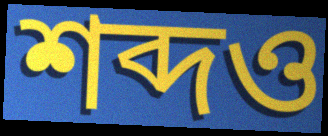
শব্দও